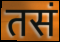
तसं